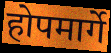
होपमार्गे